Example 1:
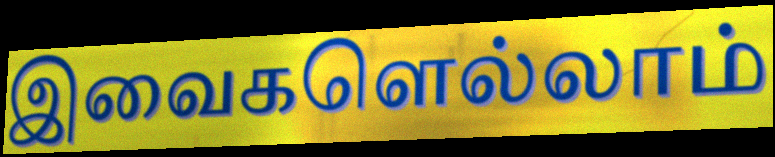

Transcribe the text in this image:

இவைகளெல்லாம்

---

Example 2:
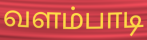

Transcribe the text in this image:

வளம்பாடி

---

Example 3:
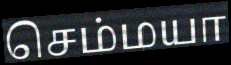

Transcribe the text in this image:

செம்மயா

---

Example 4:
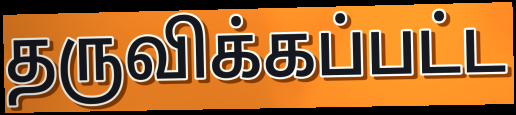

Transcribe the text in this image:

தருவிக்கப்பட்ட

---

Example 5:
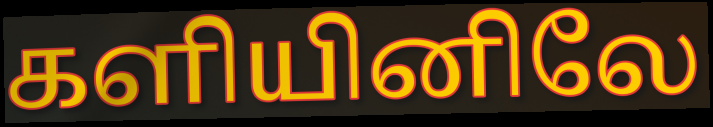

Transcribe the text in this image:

களியினிலே